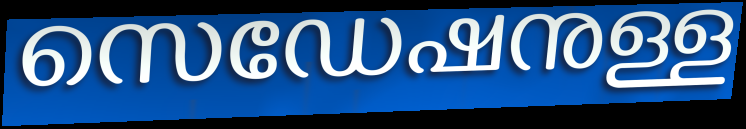
സെഡേഷനുള്ള